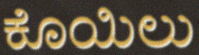
ಕೊಯಿಲು